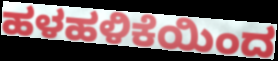
ಹಳಹಳಿಕೆಯಿಂದ